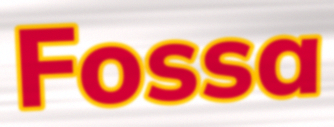
Fossa